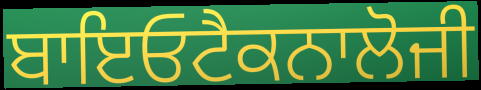
ਬਾਇਓਟੈਕਨਾਲੋਜੀ